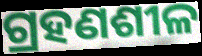
ଗ୍ରହଣଶୀଳ